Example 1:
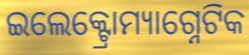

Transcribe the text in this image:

ଇଲେକ୍ଟ୍ରୋମ୍ୟାଗ୍ନେଟିକ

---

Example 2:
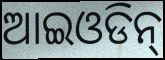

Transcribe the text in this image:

ଆଇଓଡିନ୍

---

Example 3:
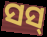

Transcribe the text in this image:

ସସ୍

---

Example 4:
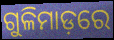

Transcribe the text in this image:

ଗୁଳିମାଡ଼ରେ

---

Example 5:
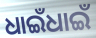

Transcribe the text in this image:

ଧାଇଁଧାଇଁ